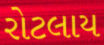
રોટલાય